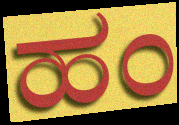
ಹಂ